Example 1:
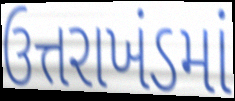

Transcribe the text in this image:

ઉત્તરાખંડમાં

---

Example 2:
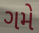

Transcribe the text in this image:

ગમે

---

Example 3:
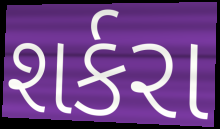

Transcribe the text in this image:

શર્કરા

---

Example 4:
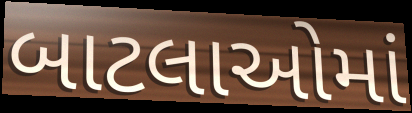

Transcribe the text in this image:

બાટલાઓમાં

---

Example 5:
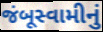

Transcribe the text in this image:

જંબૂસ્વામીનું